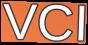
VCI